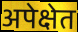
अपेक्षेत